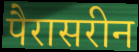
पैरासरीन